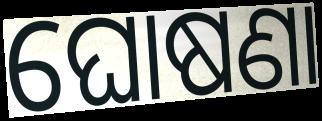
ଘୋଷଣା